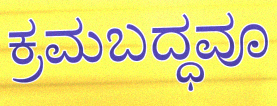
ಕ್ರಮಬದ್ಧವೂ